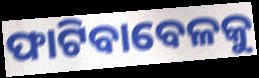
ଫାଟିବାବେଳକୁ